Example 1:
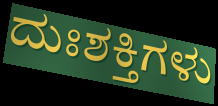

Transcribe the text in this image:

ದುಃಶಕ್ತಿಗಳು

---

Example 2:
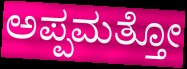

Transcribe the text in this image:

ಅಪ್ಪಮತ್ತೋ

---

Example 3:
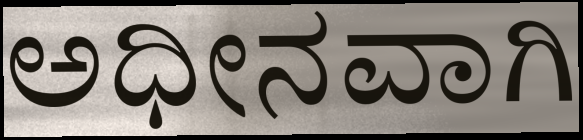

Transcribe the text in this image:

ಅಧೀನವಾಗಿ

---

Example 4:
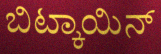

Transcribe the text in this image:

ಬಿಟ್ಕಾಯಿನ್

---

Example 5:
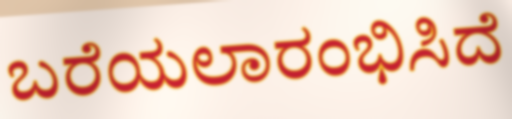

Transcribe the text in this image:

ಬರೆಯಲಾರಂಭಿಸಿದೆ